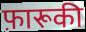
फ़ारूकी